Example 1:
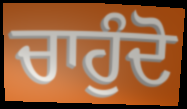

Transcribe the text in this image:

ਚਾਹੁੰਦੋ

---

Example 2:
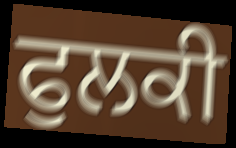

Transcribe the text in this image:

ਫੁਲਕੀ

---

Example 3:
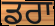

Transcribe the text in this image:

ਡਰਾ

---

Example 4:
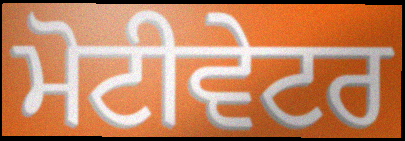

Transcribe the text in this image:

ਮੋਟੀਵੇਟਰ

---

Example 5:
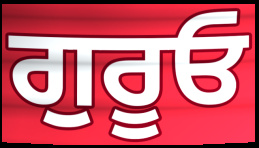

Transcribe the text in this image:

ਗੁਰੂਓ